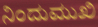
ನಿಂದುಮುಖಿ